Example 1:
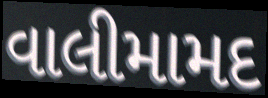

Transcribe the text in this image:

વાલીમામદ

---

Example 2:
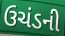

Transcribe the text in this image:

ઉચંડની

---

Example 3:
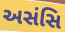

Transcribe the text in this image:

અસંસિ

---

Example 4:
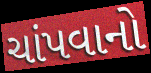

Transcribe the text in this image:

ચાંપવાનો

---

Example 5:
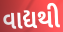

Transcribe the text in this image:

વાદ્યથી